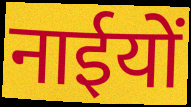
नाईयों